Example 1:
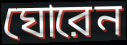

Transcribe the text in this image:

ঘোরেন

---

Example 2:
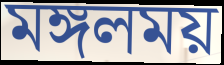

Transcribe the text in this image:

মঙ্গলময়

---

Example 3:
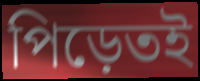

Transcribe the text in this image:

পিড়েতই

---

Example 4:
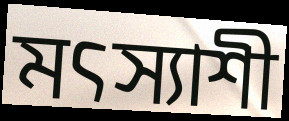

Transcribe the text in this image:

মৎস্যাশী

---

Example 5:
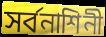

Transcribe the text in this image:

সর্বনাশিনী